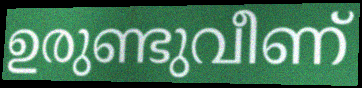
ഉരുണ്ടുവീണ്